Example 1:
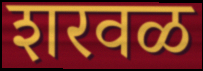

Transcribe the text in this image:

शरवळ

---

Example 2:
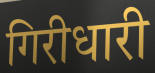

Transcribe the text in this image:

गिरीधारी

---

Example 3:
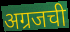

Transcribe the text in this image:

अग्रजची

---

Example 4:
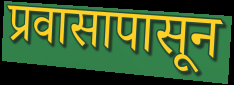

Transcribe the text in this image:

प्रवासापासून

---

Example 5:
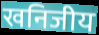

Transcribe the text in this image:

खनिजीय